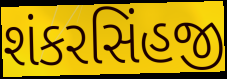
શંકરસિંહજી